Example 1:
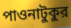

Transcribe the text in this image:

পাওনাটুকুর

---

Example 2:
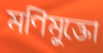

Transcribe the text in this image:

মণিমুক্তো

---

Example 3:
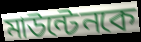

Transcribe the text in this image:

মাউন্টেনকে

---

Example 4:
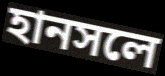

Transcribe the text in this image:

হানসলে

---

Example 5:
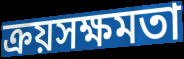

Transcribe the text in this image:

ক্রয়সক্ষমতা